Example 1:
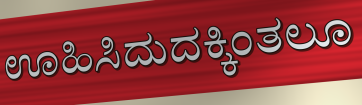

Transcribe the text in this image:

ಊಹಿಸಿದುದಕ್ಕಿಂತಲೂ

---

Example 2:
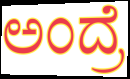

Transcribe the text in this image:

ಅಂದ್ರೆ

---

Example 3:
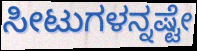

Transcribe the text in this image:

ಸೀಟುಗಳನ್ನಷ್ಟೇ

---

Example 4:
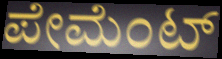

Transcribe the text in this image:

ಪೇಮೆಂಟ್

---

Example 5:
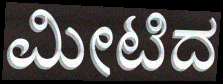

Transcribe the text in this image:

ಮೀಟಿದ